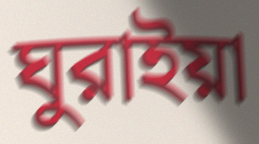
ঘুরাইয়া